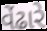
વેંઢારે